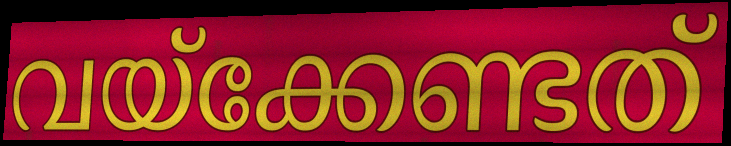
വയ്ക്കേണ്ടത്